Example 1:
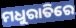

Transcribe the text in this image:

ମଧୁରାତିରେ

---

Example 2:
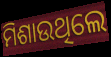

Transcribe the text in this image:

ମିଶାଉଥିଲେ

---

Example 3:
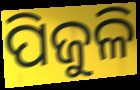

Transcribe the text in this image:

ପିଜୁଳି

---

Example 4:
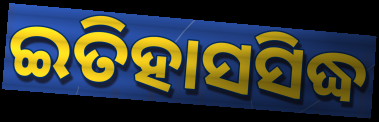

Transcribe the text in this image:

ଇତିହାସସିଦ୍ଧ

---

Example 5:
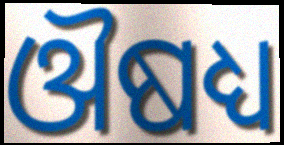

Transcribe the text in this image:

ଔଷଧ୍ୟ